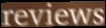
reviews